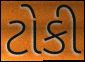
ટોકી